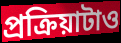
প্রক্রিয়াটাও